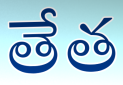
తేత